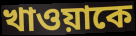
খাওয়াকে